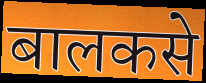
बालकसे